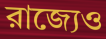
রাজ্যেও